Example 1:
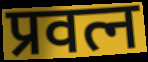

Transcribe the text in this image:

प्रवत्न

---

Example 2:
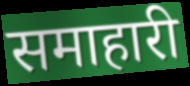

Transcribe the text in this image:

समाहारी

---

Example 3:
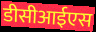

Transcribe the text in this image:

डीसीआईएस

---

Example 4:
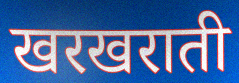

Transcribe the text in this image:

खरखराती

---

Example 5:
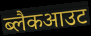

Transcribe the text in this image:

ब्लैकआउट